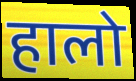
हालो